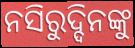
ନସିରୁଦ୍ଦିନଙ୍କୁ